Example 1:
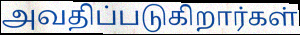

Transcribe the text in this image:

அவதிப்படுகிறார்கள்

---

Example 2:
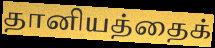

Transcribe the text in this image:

தானியத்தைக்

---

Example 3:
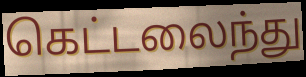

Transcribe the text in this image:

கெட்டலைந்து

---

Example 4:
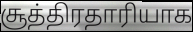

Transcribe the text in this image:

சூத்திரதாரியாக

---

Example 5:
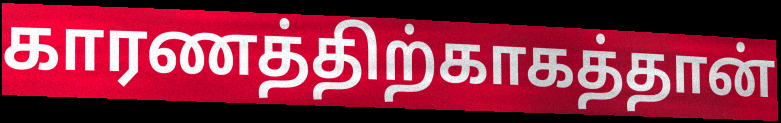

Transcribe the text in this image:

காரணத்திற்காகத்தான்